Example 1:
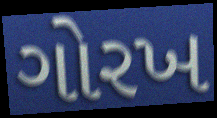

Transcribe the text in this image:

ગોરખ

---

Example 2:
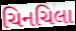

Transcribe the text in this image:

ચિનચિલા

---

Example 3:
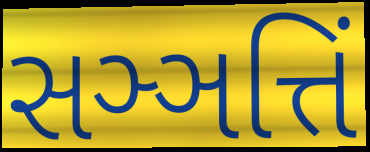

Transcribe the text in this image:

સઞ્ઞત્તિં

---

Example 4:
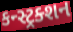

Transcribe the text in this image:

કન્સ્ટ્રક્શન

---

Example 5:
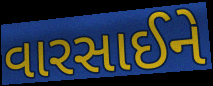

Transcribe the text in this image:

વારસાઈને